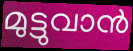
മുട്ടുവാൻ